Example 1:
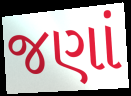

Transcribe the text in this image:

જણાં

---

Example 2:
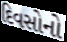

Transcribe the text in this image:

દિવસોનો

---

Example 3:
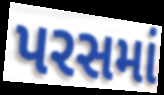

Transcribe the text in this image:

પરસમાં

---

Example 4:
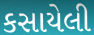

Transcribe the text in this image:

કસાયેલી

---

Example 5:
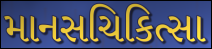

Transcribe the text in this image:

માનસચિકિત્સા